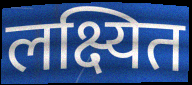
लक्ष्यित